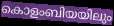
കൊളംബിയയിലും